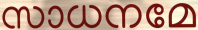
സാധനമേ